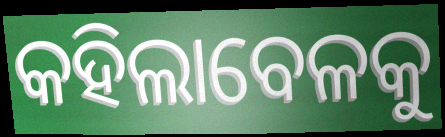
କହିଲାବେଳକୁ